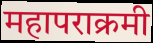
महापराक्रमी